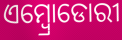
ଏମ୍ବ୍ରୋଡୋରୀ